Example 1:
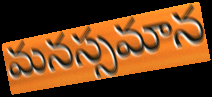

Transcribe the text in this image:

మనస్సమాన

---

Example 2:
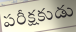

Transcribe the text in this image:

పరీక్షకుడు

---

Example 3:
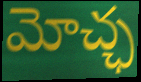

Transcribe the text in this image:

మోచ్ఛ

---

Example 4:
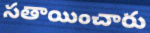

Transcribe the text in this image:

సతాయించారు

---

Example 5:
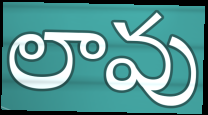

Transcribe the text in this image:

లావు